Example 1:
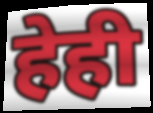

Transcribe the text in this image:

हेही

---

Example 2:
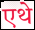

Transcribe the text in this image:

एथे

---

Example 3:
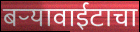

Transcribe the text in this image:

बऱ्यावाईटाचा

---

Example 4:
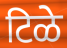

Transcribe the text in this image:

टिळे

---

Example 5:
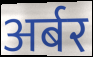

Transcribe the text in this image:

अर्बर